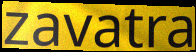
zavatra